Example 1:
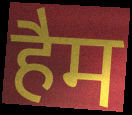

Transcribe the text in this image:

हैम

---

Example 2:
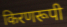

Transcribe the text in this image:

किरणरूपी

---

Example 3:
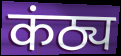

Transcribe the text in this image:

कंठ्य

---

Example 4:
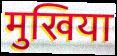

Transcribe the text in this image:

मुखिया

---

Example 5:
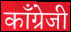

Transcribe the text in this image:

काँग्रेजी